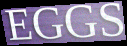
EGGS